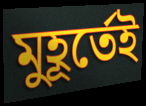
মুহূর্তেই